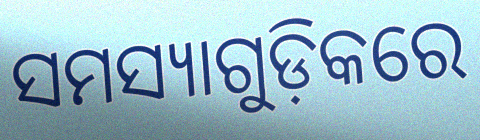
ସମସ୍ୟାଗୁଡ଼ିକରେ